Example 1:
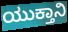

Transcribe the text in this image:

ಯುಕ್ತಾನಿ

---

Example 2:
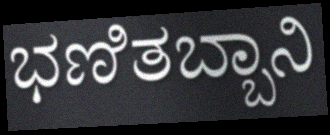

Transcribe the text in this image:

ಭಣಿತಬ್ಬಾನಿ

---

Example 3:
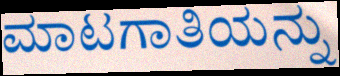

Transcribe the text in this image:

ಮಾಟಗಾತಿಯನ್ನು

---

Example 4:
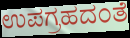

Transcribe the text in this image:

ಉಪಗ್ರಹದಂತೆ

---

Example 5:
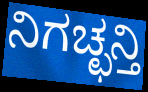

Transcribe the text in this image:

ನಿಗಚ್ಛನ್ತಿ